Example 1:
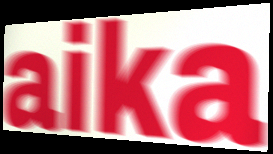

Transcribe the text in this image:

aika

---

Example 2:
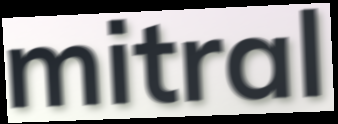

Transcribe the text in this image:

mitral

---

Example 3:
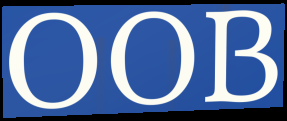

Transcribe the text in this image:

OOB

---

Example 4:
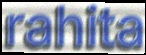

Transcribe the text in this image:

rahita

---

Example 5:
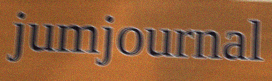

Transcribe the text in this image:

jumjournal